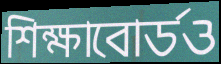
শিক্ষাবোর্ডও